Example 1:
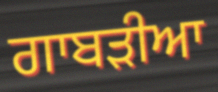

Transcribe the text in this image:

ਗਾਬੜੀਆ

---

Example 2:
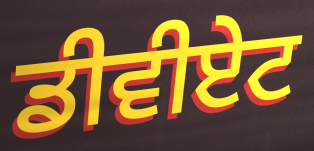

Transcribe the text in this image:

ਡੀਵੀਏਟ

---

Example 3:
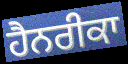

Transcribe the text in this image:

ਹੈਨਰੀਕਾ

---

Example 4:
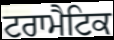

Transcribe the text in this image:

ਟਰਾਮੈਟਿਕ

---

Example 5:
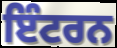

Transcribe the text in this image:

ਇੰਟਰਨ